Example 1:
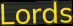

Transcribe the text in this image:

Lords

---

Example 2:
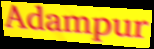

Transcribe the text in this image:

Adampur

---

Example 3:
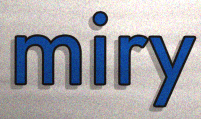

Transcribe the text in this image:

miry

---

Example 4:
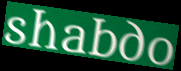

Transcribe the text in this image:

shabdo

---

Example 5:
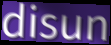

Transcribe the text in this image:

disun